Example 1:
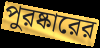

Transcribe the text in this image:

পুরষ্কারের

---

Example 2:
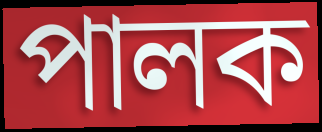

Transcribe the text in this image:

পালক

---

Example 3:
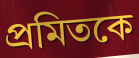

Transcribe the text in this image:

প্রমিতকে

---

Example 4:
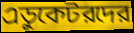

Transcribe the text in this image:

এডুকেটরদের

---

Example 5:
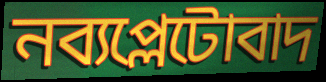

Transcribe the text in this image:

নব্যপ্লেটোবাদ